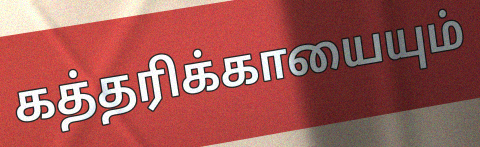
கத்தரிக்காயையும்